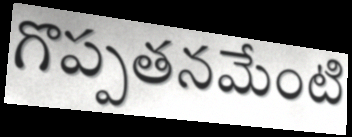
గొప్పతనమేంటి